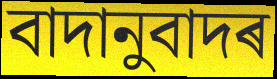
বাদানুবাদৰ